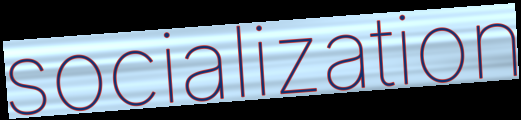
socialization